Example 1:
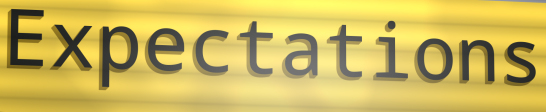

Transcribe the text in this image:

Expectations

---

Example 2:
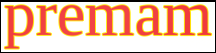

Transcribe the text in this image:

premam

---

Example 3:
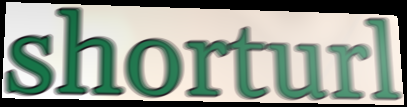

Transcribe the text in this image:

shorturl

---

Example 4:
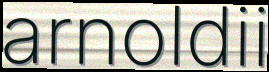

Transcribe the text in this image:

arnoldii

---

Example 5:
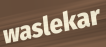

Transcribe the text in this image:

waslekar